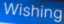
Wishing